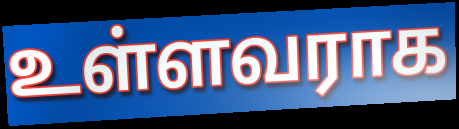
உள்ளவராக